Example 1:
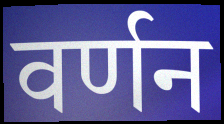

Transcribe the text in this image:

वर्णन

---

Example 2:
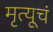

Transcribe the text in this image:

मृत्यूचं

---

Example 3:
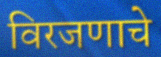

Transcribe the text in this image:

विरजणाचे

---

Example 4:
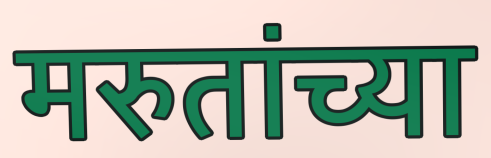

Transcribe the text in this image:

मरुतांच्या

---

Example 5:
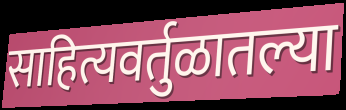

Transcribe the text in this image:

साहित्यवर्तुळातल्या